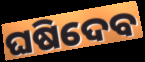
ଘଷିଦେବ